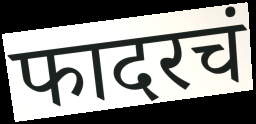
फादरचं